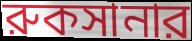
রুকসানার